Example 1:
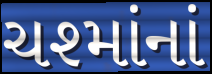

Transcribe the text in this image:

ચશ્માંનાં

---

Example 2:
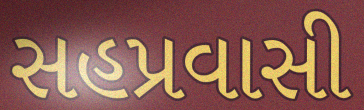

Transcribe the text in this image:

સહપ્રવાસી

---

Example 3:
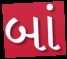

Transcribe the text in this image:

બાં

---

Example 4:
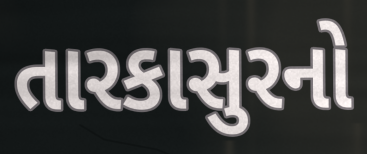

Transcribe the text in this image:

તારકાસુરનો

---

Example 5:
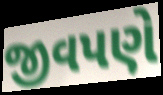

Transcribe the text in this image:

જીવપણે